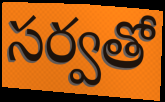
సర్వతో